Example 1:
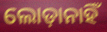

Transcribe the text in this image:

ଲୋଡ଼ାନାହିଁ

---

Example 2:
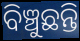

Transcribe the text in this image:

ବିଞ୍ଚୁଛନ୍ତି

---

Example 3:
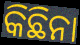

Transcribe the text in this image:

କିଛିନା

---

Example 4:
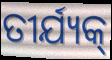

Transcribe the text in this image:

ତୀର୍ଯ୍ୟକ୍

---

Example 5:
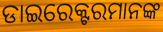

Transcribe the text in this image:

ଡାଇରେକ୍ଟରମାନଙ୍କ